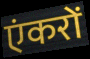
एंकरों